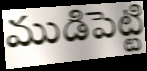
ముడిపెట్టి